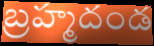
బ్రహ్మదండ